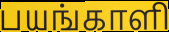
பயங்காளி